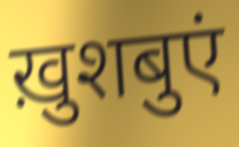
ख़ुशबुएं